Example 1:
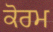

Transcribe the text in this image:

ਕੋਰਮ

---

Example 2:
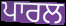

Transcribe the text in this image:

ਪਾਰਲ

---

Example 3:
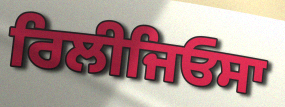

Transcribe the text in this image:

ਰਿਲੀਜਿਓਸਾ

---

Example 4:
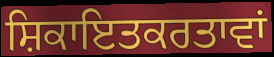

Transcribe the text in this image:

ਸ਼ਿਕਾਇਤਕਰਤਾਵਾਂ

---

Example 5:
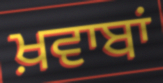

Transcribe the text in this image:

ਖ਼ਵਾਬਾਂ